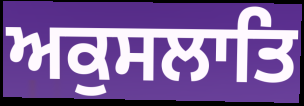
ਅਕੁਸਲਾਤਿ